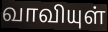
வாவியுள்